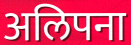
अलिपना